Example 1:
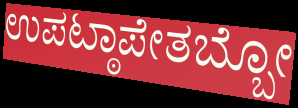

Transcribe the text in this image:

ಉಪಟ್ಠಾಪೇತಬ್ಬೋ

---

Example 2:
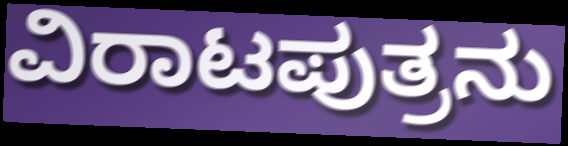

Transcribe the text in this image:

ವಿರಾಟಪುತ್ರನು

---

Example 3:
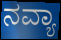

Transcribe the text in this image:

ನವ್ಯಾ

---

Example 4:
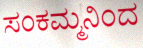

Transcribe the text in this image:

ಸಂಕಮ್ಮನಿಂದ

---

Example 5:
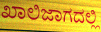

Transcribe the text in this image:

ಖಾಲಿಜಾಗದಲ್ಲಿ